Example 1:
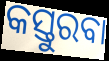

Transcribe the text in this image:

କସ୍ତୁରବା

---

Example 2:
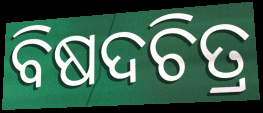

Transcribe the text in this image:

ବିଷଦଚିତ୍ର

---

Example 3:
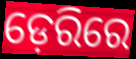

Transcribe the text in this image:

ଡ଼େରିରେ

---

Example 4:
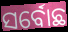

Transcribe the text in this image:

ସର୍ବୋଛ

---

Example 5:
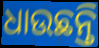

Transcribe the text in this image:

ଧାଉଛନ୍ତି